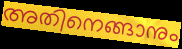
അതിനെങ്ങാനും